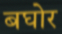
बघोर